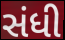
સંધી